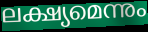
ലക്ഷ്യമെന്നും